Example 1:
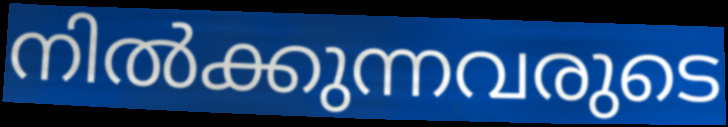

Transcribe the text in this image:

നിൽക്കുന്നവരുടെ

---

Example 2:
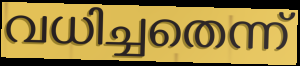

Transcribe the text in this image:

വധിച്ചതെന്ന്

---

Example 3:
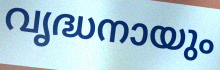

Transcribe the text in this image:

വൃദ്ധനായും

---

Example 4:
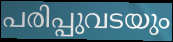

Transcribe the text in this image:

പരിപ്പുവടയും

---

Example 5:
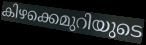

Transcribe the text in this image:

കിഴക്കെമുറിയുടെ